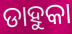
ଡାହୁକା